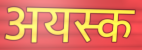
अयस्क